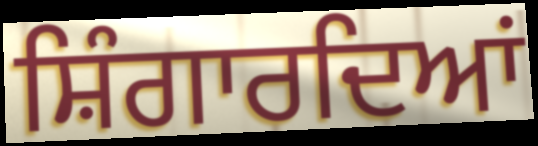
ਸ਼ਿੰਗਾਰਦਿਆਂ